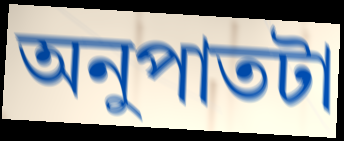
অনুপাতটা